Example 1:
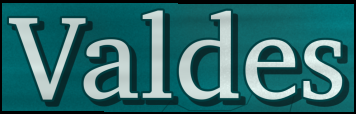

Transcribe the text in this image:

Valdes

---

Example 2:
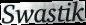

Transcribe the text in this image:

Swastik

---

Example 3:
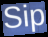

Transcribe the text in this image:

Sip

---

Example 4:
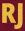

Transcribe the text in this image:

RJ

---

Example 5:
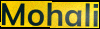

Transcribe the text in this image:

Mohali